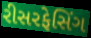
રીસરફેસિંગ